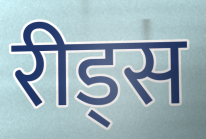
रीड्स